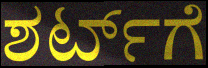
ಶರ್ಟ್‌ಗೆ